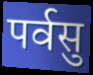
पर्वसु